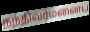
நந்திவர்மனைப்